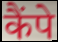
कैंपे